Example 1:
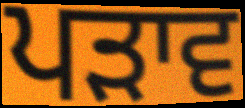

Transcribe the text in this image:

ਪੜਾਵ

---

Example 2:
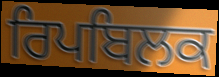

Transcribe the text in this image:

ਰਿਪਬਿਲਕ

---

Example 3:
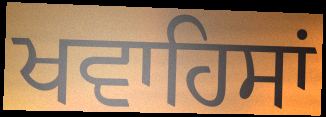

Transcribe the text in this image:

ਖਵਾਹਿਸਾਂ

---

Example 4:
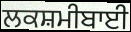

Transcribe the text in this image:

ਲਕਸ਼ਮੀਬਾਈ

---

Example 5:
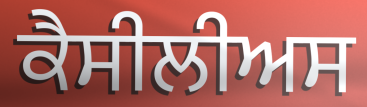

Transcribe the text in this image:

ਕੈਸੀਲੀਅਸ